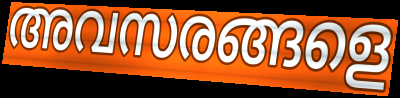
അവസരങ്ങളെ